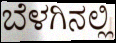
ಬೆಳಗಿನಲ್ಲಿ